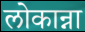
लोकान्ना